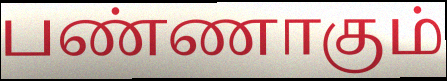
பண்ணாகும்